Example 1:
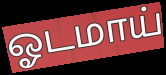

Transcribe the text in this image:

ஓடமாய்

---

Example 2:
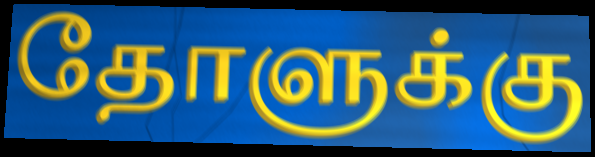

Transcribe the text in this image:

தோளுக்கு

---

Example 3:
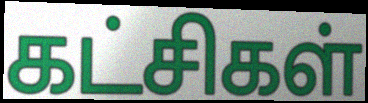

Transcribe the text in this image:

கட்சிகள்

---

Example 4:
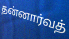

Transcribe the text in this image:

தன்னார்வத்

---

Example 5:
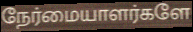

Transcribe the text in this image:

நேர்மையாளர்களே